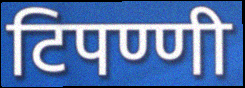
टिपण्णी